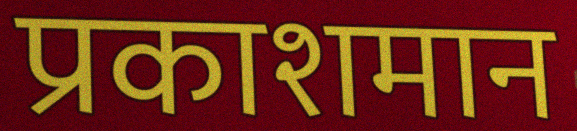
प्रकाशमान